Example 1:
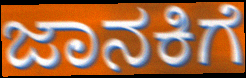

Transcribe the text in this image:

ಜಾನಕಿಗೆ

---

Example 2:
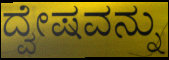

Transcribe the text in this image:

ದ್ವೇಷವನ್ನು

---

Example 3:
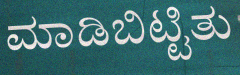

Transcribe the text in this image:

ಮಾಡಿಬಿಟ್ಟಿತು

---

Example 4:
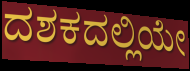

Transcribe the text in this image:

ದಶಕದಲ್ಲಿಯೇ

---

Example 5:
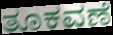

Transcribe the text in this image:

ತೂಕವಣೆ